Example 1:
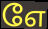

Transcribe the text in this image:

எே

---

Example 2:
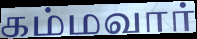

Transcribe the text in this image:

கம்மவார்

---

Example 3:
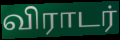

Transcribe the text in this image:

விராடர்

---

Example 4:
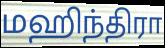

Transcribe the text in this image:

மஹிந்திரா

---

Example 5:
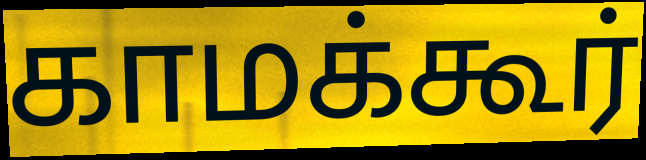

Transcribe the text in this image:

காமக்கூர்